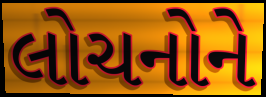
લોચનોને